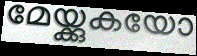
മേയ്ക്കുകയോ